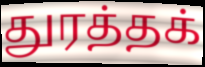
துரத்தக்